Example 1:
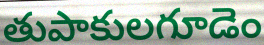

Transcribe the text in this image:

తుపాకులగూడెం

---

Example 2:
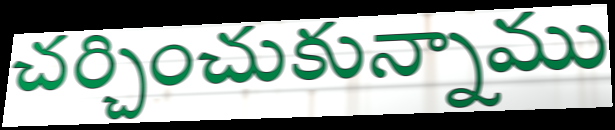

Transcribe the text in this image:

చర్చించుకున్నాము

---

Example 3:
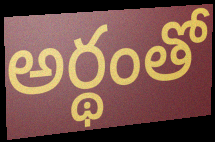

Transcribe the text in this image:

అర్థంతో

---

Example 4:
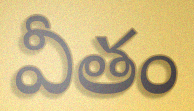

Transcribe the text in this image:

వీతం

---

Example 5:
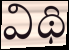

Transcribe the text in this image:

విథి